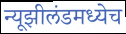
न्यूझीलंडमध्येच